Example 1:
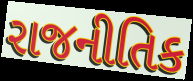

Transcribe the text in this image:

રાજનીતિક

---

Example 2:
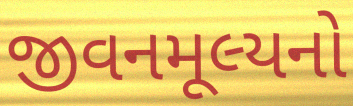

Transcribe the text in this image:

જીવનમૂલ્યનો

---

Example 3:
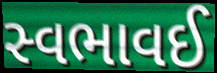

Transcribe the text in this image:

સ્વભાવઈ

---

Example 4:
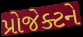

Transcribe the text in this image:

પ્રોજેક્ટને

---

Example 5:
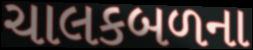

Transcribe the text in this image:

ચાલકબળના